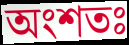
অংশতঃ